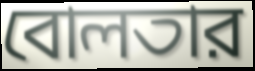
বোলতার